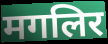
मगलिर